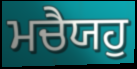
ਮਚੈਯਹੁ